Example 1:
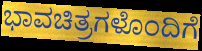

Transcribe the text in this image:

ಭಾವಚಿತ್ರಗಳೊಂದಿಗೆ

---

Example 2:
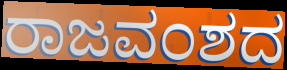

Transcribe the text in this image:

ರಾಜವಂಶದ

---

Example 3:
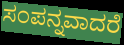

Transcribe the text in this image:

ಸಂಪನ್ನವಾದರೆ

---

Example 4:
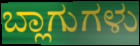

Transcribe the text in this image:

ಬ್ಲಾಗುಗಳು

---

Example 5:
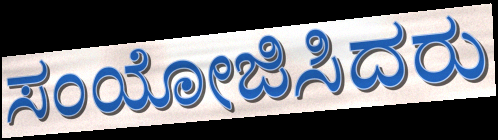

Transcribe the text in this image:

ಸಂಯೋಜಿಸಿದರು